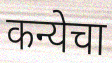
कन्येचा